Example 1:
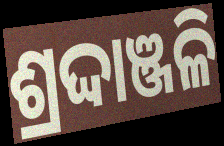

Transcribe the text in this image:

ଶ୍ରଦ୍ଦାଞ୍ଜଳି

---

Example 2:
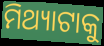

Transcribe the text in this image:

ମିଥ୍ୟାଟାକୁ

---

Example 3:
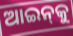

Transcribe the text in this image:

ଆଇନ୍‍କୁ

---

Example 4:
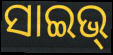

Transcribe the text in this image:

ସାଇଭ୍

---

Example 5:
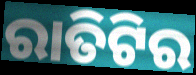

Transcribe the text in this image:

ରାତିଟିର